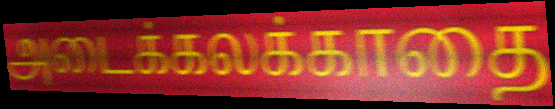
அடைக்கலக்காதை